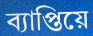
ব্য়াপ্তিয়ে